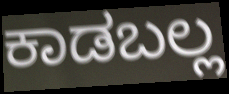
ಕಾಡಬಲ್ಲ